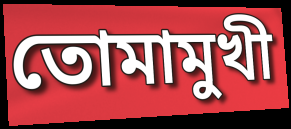
তোমামুখী